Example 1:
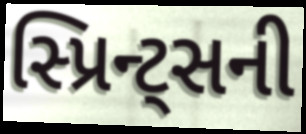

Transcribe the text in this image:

સ્પ્રિન્ટ્સની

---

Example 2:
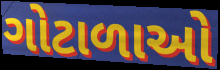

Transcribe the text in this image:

ગોટાળાઓ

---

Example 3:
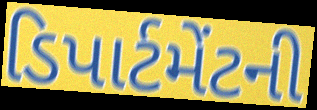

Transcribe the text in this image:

ડિપાર્ટમેંટની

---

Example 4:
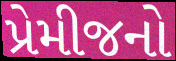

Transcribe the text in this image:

પ્રેમીજનો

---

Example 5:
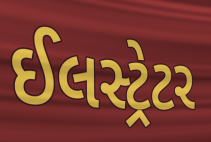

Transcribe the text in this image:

ઈલસ્ટ્રેટર